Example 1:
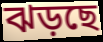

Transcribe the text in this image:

ঝড়ছে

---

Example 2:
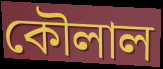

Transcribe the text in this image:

কৌলাল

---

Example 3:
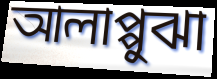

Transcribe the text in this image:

আলাপ্পুঝা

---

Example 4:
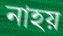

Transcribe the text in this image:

নাহয়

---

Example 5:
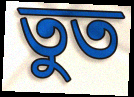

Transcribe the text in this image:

তুত